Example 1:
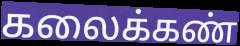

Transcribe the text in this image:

கலைக்கண்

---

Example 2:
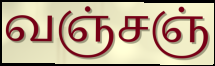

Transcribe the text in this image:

வஞ்சஞ்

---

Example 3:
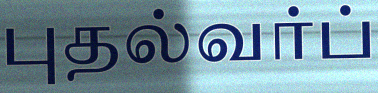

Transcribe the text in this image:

புதல்வர்ப்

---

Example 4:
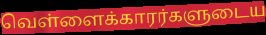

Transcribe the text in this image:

வெள்ளைக்காரர்களுடைய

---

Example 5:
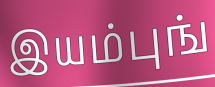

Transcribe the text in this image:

இயம்புங்